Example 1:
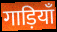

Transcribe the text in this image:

गाड़ियाँ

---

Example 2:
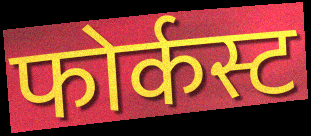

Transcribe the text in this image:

फोर्कस्ट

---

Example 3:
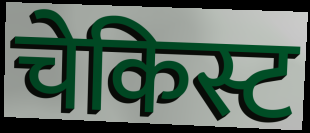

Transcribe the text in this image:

चेकिस्ट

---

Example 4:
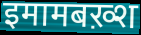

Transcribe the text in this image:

इमामबख़्श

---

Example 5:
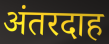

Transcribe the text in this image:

अंतरदाह